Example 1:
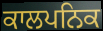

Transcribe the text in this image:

ਕਾਲਪਨਿਕ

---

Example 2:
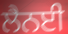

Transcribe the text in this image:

ਲੈਨਈ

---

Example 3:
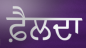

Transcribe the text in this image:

ਫ਼ੈਲਦਾ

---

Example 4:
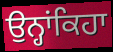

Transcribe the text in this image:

ਉਨ੍ਹਾਂਕਿਹਾ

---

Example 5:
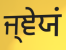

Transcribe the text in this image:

ਜ੍ਞੇਯਂ